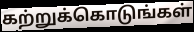
கற்றுக்கொடுங்கள்